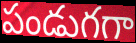
పండుగగా